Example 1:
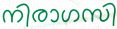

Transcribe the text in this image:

നിരാഗസി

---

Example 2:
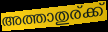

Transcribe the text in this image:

അത്താതുര്ക്ക്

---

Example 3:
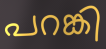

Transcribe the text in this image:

പറങ്കി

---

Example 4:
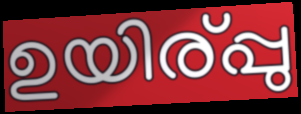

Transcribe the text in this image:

ഉയിര്പ്പു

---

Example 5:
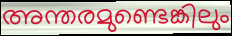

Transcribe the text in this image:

അന്തരമുണ്ടെങ്കിലും